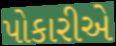
પોકારીએ